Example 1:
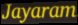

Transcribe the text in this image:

Jayaram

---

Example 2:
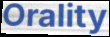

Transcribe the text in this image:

Orality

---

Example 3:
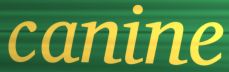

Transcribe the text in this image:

canine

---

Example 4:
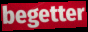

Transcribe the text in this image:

begetter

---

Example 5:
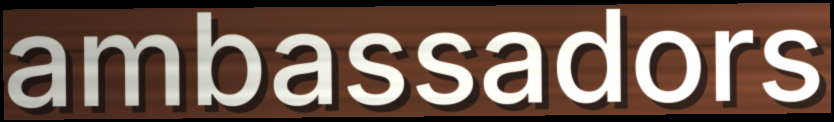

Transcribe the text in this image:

ambassadors